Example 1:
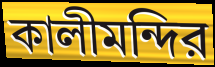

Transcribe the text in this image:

কালীমন্দির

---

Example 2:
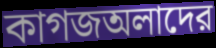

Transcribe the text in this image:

কাগজঅলাদের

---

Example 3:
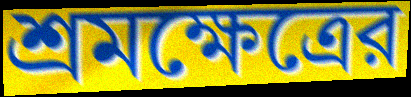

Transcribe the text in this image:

শ্রমক্ষেত্রের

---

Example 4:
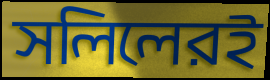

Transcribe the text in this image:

সলিলেরই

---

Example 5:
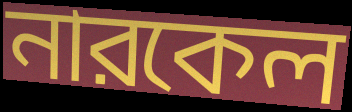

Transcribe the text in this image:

নারকেল